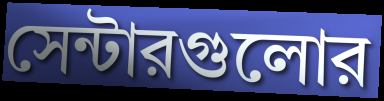
সেন্টারগুলোর